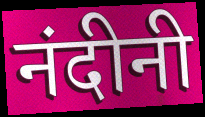
नंदीनी